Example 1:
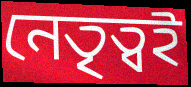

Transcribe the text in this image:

নেতৃত্বই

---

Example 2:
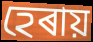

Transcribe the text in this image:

হেৰায়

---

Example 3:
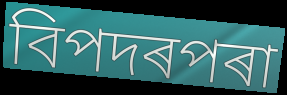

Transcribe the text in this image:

বিপদৰপৰা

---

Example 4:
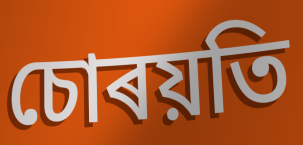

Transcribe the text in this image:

চোৰয়তি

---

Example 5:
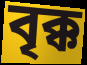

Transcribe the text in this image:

বৃক্ক